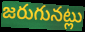
జరుగునట్లు